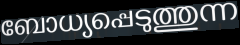
ബോധ്യപ്പെടുത്തുന്ന